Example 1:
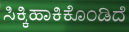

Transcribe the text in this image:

ಸಿಕ್ಕಿಹಾಕಿಕೊಂಡಿದೆ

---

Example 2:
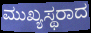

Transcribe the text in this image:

ಮುಖ್ಯಸ್ಥರಾದ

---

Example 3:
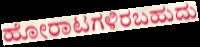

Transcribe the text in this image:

ಹೋರಾಟಗಳಿರಬಹುದು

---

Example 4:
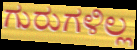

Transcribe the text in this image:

ಗುರುಗಳಿಲ್ಲ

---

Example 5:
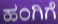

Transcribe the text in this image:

ಹಂಗಿಗೆ